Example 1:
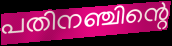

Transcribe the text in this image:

പതിനഞ്ചിന്റെ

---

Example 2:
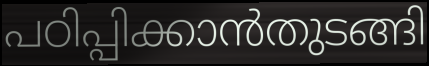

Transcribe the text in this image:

പഠിപ്പിക്കാൻതുടങ്ങി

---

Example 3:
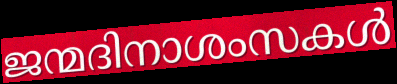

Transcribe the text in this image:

ജന്മദിനാശംസകൾ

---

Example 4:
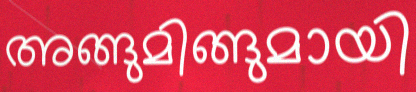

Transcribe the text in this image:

അങ്ങുമിങ്ങുമായി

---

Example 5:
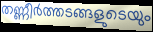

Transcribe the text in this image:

തണ്ണീർത്തടങ്ങളുടെയും